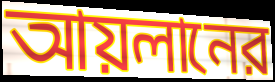
আয়লানের